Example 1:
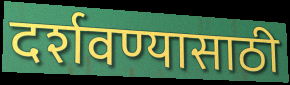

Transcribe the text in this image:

दर्शवण्यासाठी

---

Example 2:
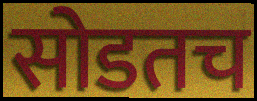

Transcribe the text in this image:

सोडतच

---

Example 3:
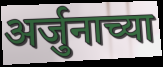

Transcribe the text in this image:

अर्जुनाच्या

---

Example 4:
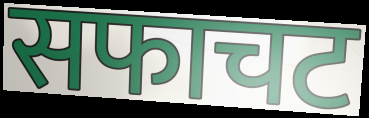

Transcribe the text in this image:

सफाचट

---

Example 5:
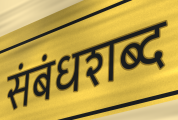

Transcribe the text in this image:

संबंधशब्द